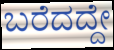
ಬರೆದದ್ದೇ